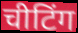
चीटिंग